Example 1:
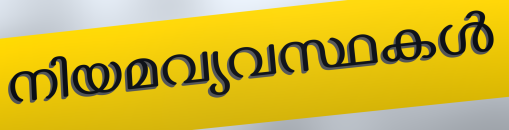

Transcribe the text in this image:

നിയമവ്യവസ്ഥകൾ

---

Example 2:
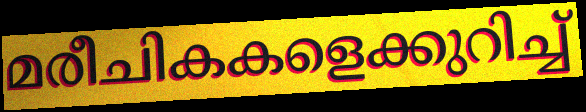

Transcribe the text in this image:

മരീചികകളെക്കുറിച്ച്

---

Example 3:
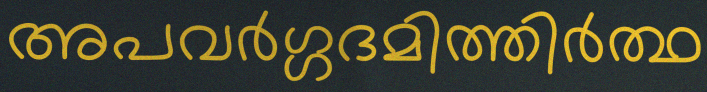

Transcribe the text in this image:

അപവർഗ്ഗദമിത്തിർത്ഥ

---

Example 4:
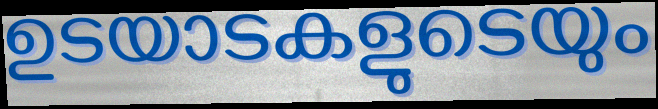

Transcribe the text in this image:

ഉടയാടകളുടെയും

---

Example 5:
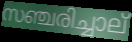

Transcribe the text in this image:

സഞ്ചരിച്ചാല്